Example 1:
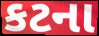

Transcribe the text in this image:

કટના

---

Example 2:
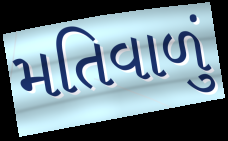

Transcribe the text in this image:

મતિવાળું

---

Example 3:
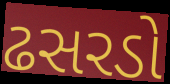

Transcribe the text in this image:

ઢસરડો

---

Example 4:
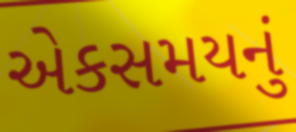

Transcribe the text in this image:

એકસમયનું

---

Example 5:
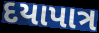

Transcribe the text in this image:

દયાપાત્ર